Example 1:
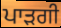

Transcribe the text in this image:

ਪਾੜਗੀ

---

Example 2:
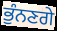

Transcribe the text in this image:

ਭੁੰਨਣਗੇ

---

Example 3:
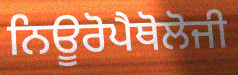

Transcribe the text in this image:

ਨਿਊਰੋਪੈਥੋਲੋਜੀ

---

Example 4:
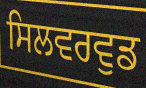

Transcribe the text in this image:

ਸਿਲਵਰਵੁਡ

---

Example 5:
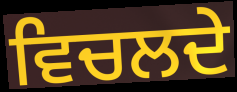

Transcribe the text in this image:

ਵਿਚਲਦੇ